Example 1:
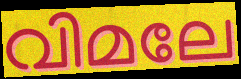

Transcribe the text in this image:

വിമലേ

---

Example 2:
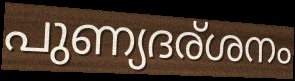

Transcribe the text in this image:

പുണ്യദര്ശനം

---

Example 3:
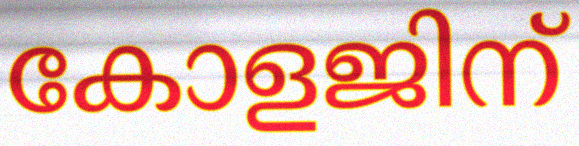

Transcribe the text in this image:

കോളജിന്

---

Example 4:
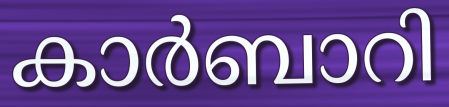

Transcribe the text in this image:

കാർബാറി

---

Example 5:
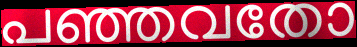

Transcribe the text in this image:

പഞ്ഞവതോ